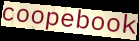
coopebook